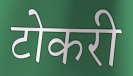
टोकरी